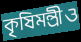
কৃষিমন্ত্রীও